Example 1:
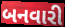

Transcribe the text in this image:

બનવારી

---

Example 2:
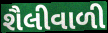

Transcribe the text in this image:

શૈલીવાળી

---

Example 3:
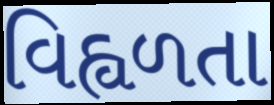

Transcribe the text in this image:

વિહ્વળતા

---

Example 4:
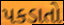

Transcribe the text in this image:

પકડાતો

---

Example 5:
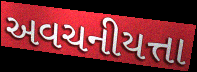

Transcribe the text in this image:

અવચનીયત્તા